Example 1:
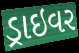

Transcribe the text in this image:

ડ્રાઇવર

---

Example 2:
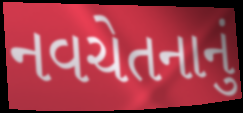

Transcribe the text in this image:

નવચેતનાનું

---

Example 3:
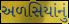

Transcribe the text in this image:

અળસિયાંનું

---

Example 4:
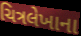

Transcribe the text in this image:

ચિત્રલેખાના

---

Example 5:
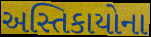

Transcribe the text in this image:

અસ્તિકાયોના